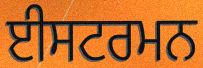
ਈਸਟਰਮਨ